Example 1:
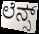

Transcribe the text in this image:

ಲೆನ್ಸ್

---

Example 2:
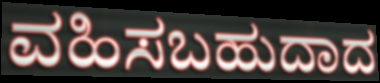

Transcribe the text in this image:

ವಹಿಸಬಹುದಾದ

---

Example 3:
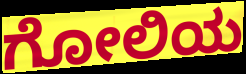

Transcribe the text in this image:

ಗೋಲಿಯ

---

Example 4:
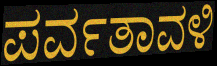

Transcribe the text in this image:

ಪರ್ವತಾವಳಿ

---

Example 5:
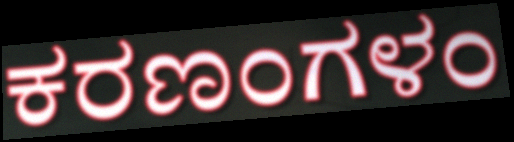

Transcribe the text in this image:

ಕರಣಂಗಳಂ